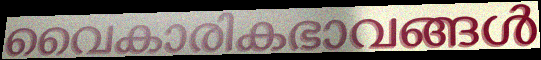
വൈകാരികഭാവങ്ങൾ